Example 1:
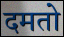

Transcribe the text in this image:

दमतो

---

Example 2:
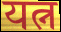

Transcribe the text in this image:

यत्न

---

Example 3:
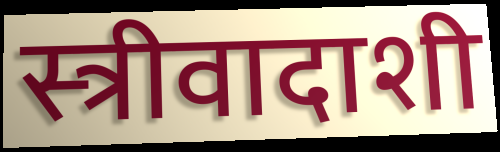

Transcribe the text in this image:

स्त्रीवादाशी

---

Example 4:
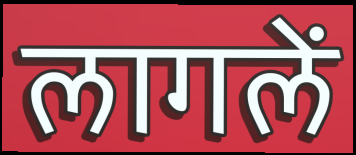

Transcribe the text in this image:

लागलें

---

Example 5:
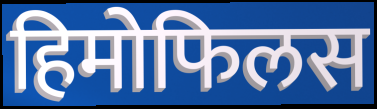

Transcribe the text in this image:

हिमोफिलस